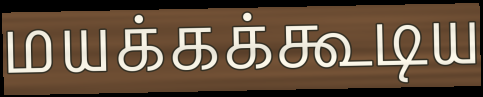
மயக்கக்கூடிய